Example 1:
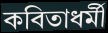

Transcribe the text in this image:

কবিতাধর্মী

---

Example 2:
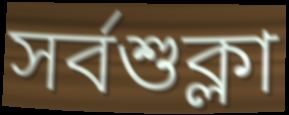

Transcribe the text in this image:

সর্বশুক্লা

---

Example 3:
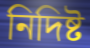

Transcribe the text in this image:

নিদিষ্ট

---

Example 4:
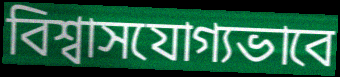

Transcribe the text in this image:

বিশ্বাসযোগ্যভাবে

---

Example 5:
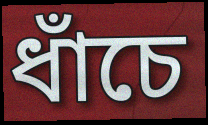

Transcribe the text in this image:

ধাঁচে